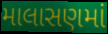
માલાસણમાં